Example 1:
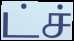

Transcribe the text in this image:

ட்ச்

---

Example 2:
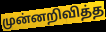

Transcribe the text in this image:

முன்னறிவித்த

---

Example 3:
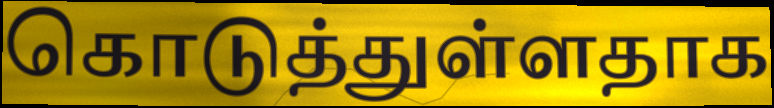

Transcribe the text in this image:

கொடுத்துள்ளதாக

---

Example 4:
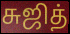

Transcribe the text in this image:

சுஜித்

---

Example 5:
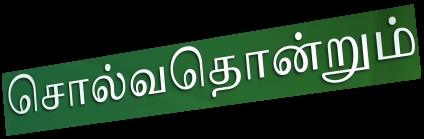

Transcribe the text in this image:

சொல்வதொன்றும்